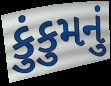
કુંકુમનું